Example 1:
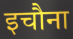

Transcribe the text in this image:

इचौना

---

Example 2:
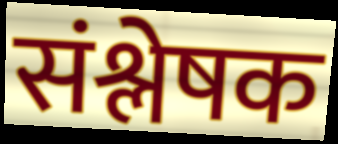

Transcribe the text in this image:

संश्लेषक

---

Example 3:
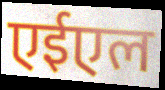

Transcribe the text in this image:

एईएल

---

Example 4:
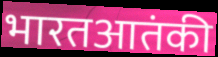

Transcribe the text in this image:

भारतआतंकी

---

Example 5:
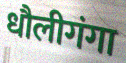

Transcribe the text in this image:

धौलीगंगा